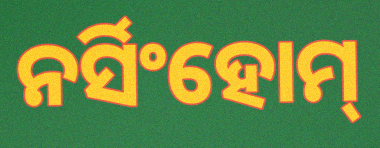
ନର୍ସିଂହୋମ୍